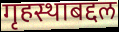
गृहस्थाबद्दल